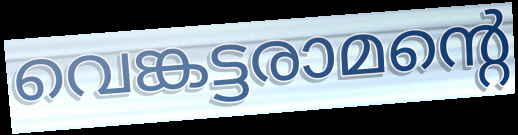
വെങ്കട്ടരാമന്റെ